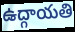
ఉద్గాయతి